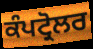
ਕੰਪਟ੍ਰੋਲਰ